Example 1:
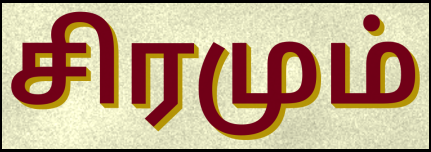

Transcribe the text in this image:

சிரமும்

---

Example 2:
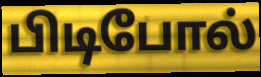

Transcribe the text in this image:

பிடிபோல்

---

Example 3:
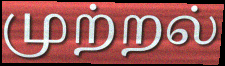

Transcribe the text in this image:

முற்றல்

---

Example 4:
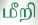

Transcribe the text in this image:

மீறி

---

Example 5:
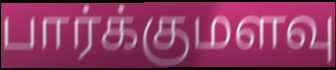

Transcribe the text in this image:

பார்க்குமளவு